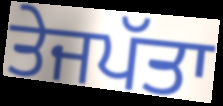
ਤੇਜਪੱਤਾ